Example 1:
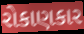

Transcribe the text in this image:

રોકાણકાર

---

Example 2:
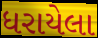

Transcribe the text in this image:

ધરાયેલા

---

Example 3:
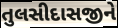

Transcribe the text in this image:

તુલસીદાસજીને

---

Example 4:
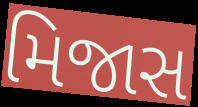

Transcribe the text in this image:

મિજાસ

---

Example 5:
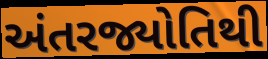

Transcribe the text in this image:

અંતરજ્યોતિથી